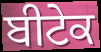
ਬੀਟੇਕ